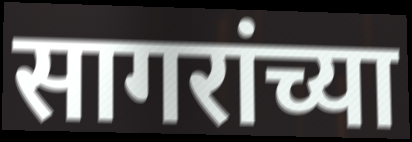
सागरांच्या